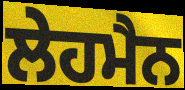
ਲੇਹਮੈਨ